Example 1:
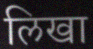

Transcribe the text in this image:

लिखा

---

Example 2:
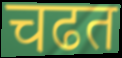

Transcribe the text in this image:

चढत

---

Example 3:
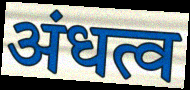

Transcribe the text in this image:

अंधत्व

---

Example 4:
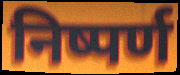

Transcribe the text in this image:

निष्पर्ण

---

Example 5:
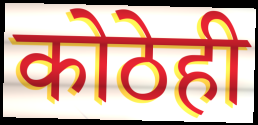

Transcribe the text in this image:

कोठेही